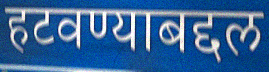
हटवण्याबद्दल